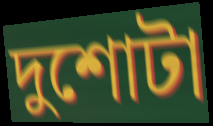
দুশোটা